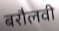
बरौलवी